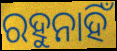
ରହୁନାହିଁ